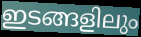
ഇടങ്ങളിലും